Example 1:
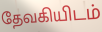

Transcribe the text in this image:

தேவகியிடம்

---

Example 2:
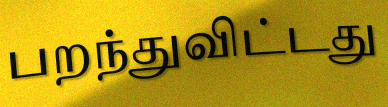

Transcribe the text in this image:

பறந்துவிட்டது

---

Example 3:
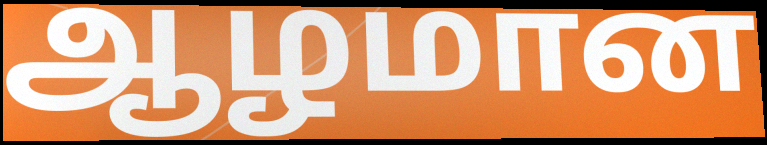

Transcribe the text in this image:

ஆழமான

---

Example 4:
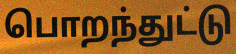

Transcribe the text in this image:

பொறந்துட்டு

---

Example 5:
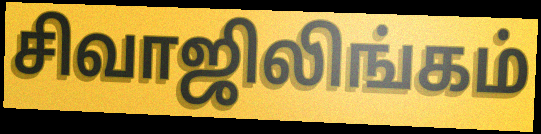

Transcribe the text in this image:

சிவாஜிலிங்கம்